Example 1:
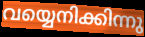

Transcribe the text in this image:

വയ്യെനിക്കിന്നു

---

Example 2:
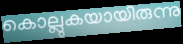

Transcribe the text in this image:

കൊല്ലുകയായിരുന്നു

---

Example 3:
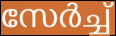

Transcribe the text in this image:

സേർച്ച്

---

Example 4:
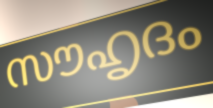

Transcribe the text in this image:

സൗഹൃദം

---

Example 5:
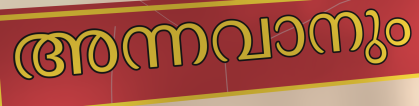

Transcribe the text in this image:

അന്നവാനും